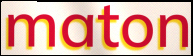
maton